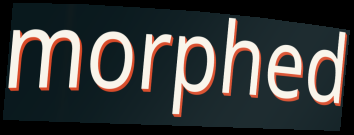
morphed